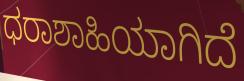
ಧರಾಶಾಹಿಯಾಗಿದೆ